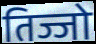
तिज्जो